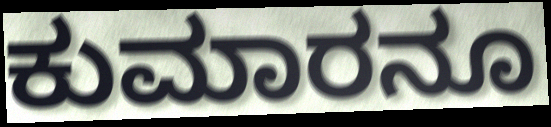
ಕುಮಾರನೂ